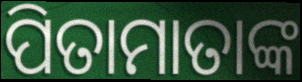
ପିତାମାତାଙ୍କ